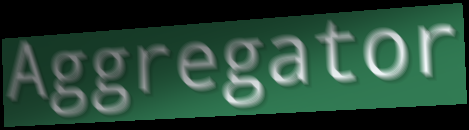
Aggregator